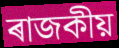
ৰাজকীয়